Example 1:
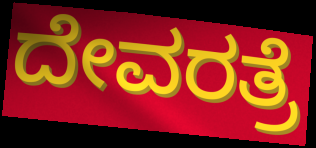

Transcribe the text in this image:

ದೇವರತ್ರೆ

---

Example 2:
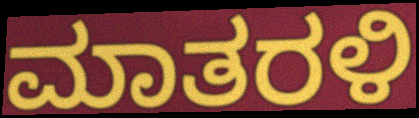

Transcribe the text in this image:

ಮಾತರಳಿ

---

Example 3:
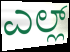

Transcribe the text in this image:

ಎಲ್ಲ್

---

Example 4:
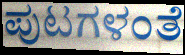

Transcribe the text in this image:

ಪುಟಗಳಂತೆ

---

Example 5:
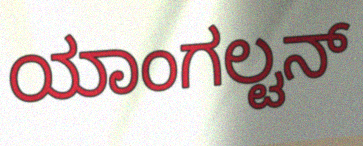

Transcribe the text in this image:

ಯಾಂಗಲ್ಟನ್